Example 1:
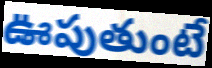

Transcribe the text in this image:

ఊపుతుంటే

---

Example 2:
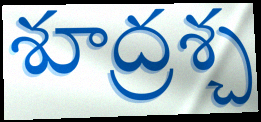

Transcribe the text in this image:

శూద్రశ్చ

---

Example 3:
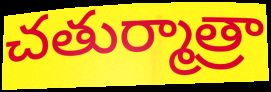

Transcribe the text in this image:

చతుర్మాత్రా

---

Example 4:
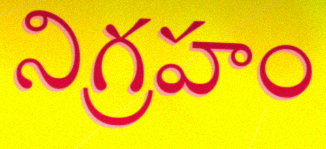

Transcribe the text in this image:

నిగ్రహం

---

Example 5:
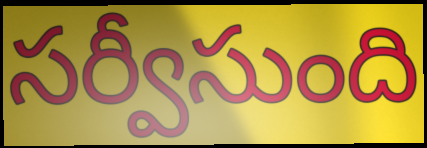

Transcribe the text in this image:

సర్వీసుంది